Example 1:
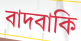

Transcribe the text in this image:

বাদবাকি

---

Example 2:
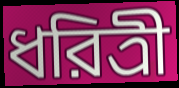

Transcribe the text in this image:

ধরিত্রী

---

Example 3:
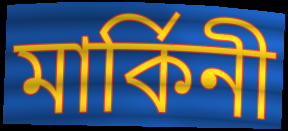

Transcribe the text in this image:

মার্কিনী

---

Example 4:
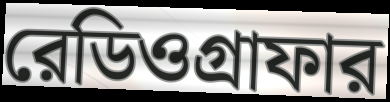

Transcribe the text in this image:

রেডিওগ্রাফার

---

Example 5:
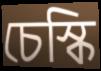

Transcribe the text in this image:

চেস্কি